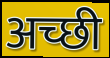
अच्‍छी